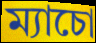
ম্যাচো